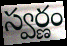
స్వర్ణం